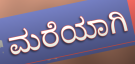
ಮರೆಯಾಗಿ